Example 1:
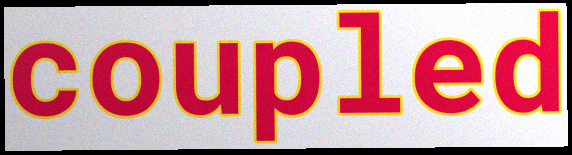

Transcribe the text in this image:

coupled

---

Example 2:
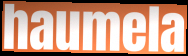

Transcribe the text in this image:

haumela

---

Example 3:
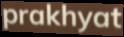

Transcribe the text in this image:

prakhyat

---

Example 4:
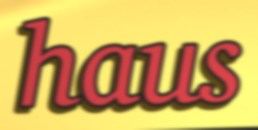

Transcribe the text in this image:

haus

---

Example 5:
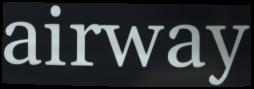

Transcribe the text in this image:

airway